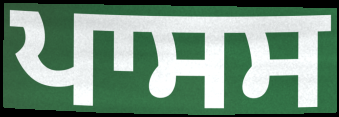
ਪਾਸਸ